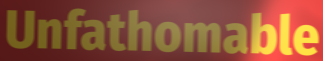
Unfathomable